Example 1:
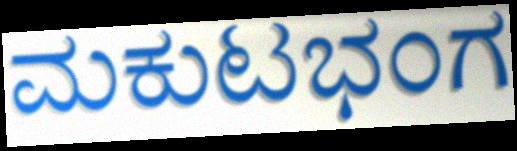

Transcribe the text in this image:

ಮಕುಟಭಂಗ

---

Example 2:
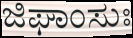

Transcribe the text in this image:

ಜಿಘಾಂಸುಃ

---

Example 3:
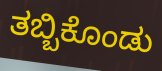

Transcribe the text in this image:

ತಬ್ಬಿಕೊಂಡು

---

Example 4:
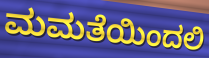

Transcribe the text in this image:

ಮಮತೆಯಿಂದಲಿ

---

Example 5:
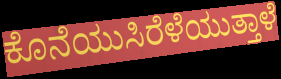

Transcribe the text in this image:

ಕೊನೆಯುಸಿರೆಳೆಯುತ್ತಾಳೆ